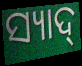
ସ୍ୟାଦ୍